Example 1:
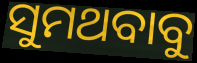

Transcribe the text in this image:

ସୁମଥବାବୁ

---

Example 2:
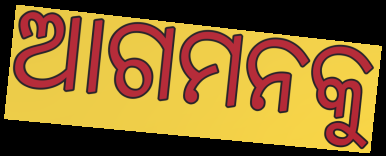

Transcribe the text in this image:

ଆଗମନକୁ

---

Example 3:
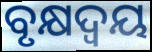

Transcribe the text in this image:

ବୃକ୍ଷଦ୍ୱୟ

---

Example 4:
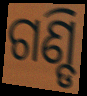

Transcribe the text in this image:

ଗଣ୍ଡି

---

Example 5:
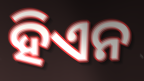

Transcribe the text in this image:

ହିଏନ